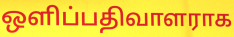
ஒளிப்பதிவாளராக